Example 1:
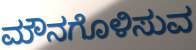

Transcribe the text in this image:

ಮೌನಗೊಳಿಸುವ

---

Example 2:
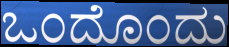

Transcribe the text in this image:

ಒಂದೊಂದು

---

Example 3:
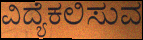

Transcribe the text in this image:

ವಿದ್ಯೆಕಲಿಸುವ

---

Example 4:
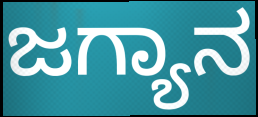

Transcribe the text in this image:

ಜಗ್ಯಾನ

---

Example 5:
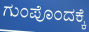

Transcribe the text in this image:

ಗುಂಪೊಂದಕ್ಕೆ